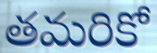
తమరికో